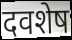
दवशेष